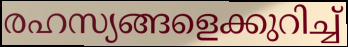
രഹസ്യങ്ങളെക്കുറിച്ച്